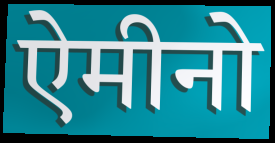
ऐमीनो